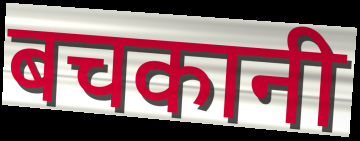
बचकानी